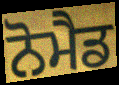
ਨੋਮੈਡ